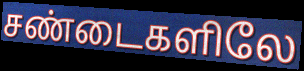
சண்டைகளிலே